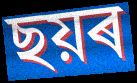
ছয়ৰ